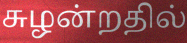
சுழன்றதில்